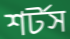
শর্টস